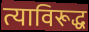
त्याविरूद्ध